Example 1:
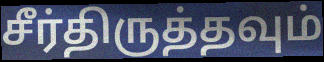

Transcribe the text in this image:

சீர்திருத்தவும்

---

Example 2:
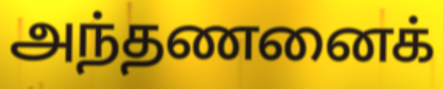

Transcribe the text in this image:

அந்தணனைக்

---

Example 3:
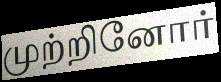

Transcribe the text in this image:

முற்றினோர்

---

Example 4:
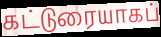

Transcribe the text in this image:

கட்டுரையாகப்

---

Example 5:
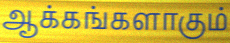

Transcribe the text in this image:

ஆக்கங்களாகும்